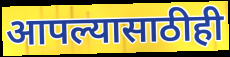
आपल्यासाठीही